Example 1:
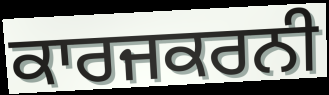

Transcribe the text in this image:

ਕਾਰਜਕਰਨੀ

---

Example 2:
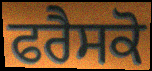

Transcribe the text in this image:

ਫਰੈਸਕੋ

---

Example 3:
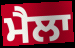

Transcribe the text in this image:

ਮੈਲਾ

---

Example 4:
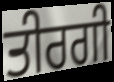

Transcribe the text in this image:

ਤੀਰਗੀ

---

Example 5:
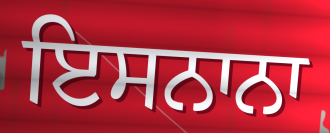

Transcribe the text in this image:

ਇਸਨਾਨਾ